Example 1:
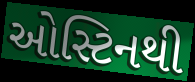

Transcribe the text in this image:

ઓસ્ટિનથી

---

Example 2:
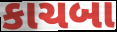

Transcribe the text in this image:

કાચબા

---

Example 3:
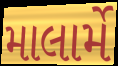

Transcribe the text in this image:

માલાર્મે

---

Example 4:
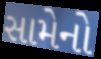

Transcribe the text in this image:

સામેનો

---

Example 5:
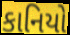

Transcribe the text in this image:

કાનિયો